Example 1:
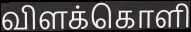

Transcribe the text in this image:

விளக்கொளி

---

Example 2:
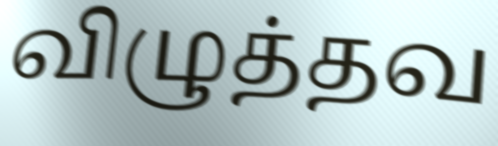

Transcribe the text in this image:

விழுத்தவ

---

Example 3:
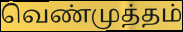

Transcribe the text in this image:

வெண்முத்தம்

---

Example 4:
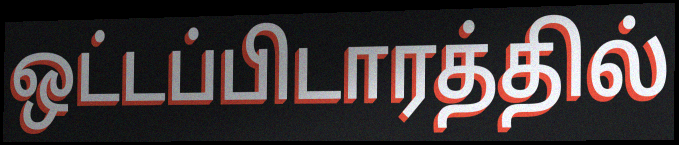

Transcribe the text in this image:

ஒட்டப்பிடாரத்தில்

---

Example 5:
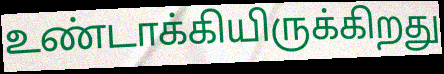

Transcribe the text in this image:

உண்டாக்கியிருக்கிறது